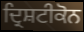
ਦ੍ਰਿਸ਼ਟੀਕੋਨ